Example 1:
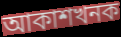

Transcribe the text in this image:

আকাশখনক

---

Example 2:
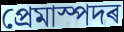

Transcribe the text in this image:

প্ৰেমাস্পদৰ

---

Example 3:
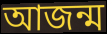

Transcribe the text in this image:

আজন্ম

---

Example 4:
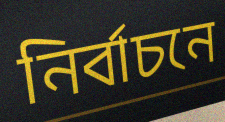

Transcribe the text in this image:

নিৰ্বাচনে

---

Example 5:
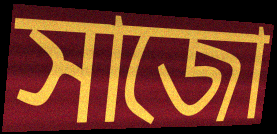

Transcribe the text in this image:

সাজো